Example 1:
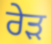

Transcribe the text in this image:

ਰੇੜ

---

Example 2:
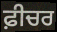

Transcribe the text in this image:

ਫ਼ੀਚਰ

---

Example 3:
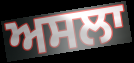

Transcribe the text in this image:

ਅਸਲਾ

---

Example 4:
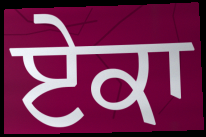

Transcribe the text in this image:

ਏਕਾ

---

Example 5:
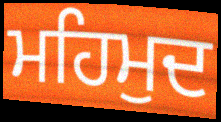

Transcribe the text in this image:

ਮਹਿਮੁਦ